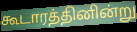
கூடாரத்தினின்று